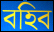
বহিব